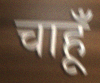
चाहूँ